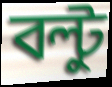
বল্টু